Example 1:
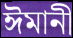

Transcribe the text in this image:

ঈমানী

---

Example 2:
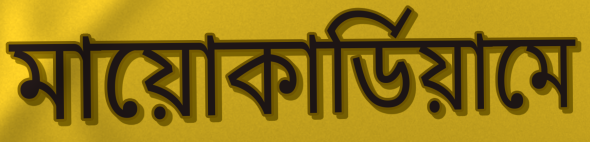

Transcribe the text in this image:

মায়োকার্ডিয়ামে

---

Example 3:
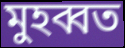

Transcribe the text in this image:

মুহব্বত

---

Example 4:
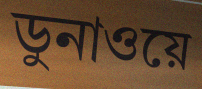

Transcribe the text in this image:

ডুনাওয়ে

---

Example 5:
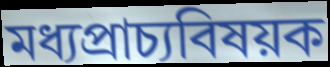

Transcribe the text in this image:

মধ্যপ্রাচ্যবিষয়ক